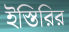
ইস্তিরির